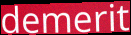
demerit